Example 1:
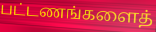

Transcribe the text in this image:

பட்டணங்களைத்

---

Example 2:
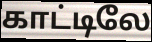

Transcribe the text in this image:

காட்டிலே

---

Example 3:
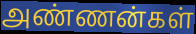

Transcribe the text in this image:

அண்ணன்கள்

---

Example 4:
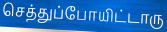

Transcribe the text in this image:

செத்துப்போயிட்டாரு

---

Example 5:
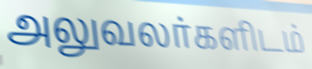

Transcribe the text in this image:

அலுவலர்களிடம்